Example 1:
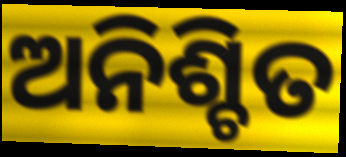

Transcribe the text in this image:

ଅନିଶ୍ଚିତ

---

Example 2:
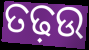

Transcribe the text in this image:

ତଢ଼ଉ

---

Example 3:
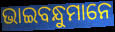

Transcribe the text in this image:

ଭାଇବନ୍ଧୁମାନେ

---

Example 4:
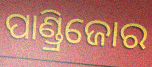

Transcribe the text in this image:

ପାଣ୍ଡ୍ରିଜୋର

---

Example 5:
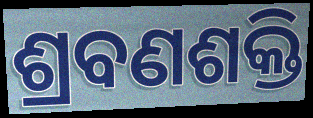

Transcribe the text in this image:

ଶ୍ରବଣଶକ୍ତି